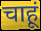
चाहूं